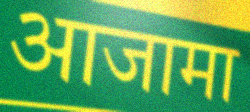
आजामा